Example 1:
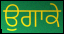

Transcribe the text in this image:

ਉਗਾਕੇ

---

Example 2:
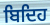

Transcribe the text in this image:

ਬਿਦਿਹ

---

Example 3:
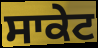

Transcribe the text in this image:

ਸਾਕੇਟ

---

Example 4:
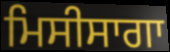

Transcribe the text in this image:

ਮਿਸੀਸਾਗਾ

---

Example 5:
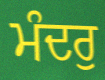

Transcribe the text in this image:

ਮੰਦਰੁ